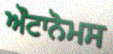
ਔਟਾਨੋਮਸ